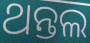
ଥନ୍ତଲ